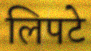
लिपटे